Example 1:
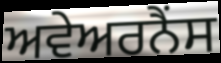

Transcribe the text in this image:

ਅਵੇਅਰਨੈਂਸ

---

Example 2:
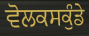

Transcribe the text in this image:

ਵੋਲਕਸਕੁੰਡੇ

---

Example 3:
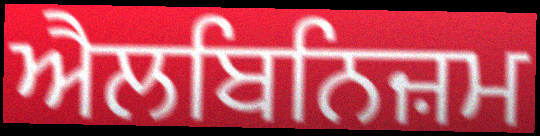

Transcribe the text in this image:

ਐਲਬਿਨਿਜ਼ਮ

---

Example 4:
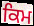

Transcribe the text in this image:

ਕਿਮ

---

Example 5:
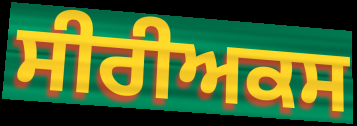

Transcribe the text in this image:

ਸੀਰੀਅਕਸ